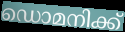
ഡൊമനിക്ക്